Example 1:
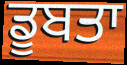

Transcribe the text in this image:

ਡੂਬਤਾ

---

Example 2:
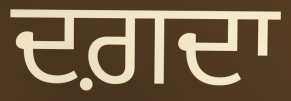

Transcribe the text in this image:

ਦਗ਼ਦਾ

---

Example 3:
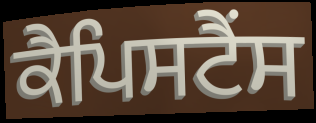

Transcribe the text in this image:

ਕੈਪਿਸਟੈਂਸ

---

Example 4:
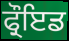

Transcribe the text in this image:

ਫ੍ਰੌਇਡ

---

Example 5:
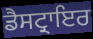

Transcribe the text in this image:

ਡੈਸਟ੍ਰਾਇਰ